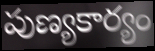
పుణ్యకార్యం